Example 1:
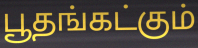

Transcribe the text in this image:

பூதங்கட்கும்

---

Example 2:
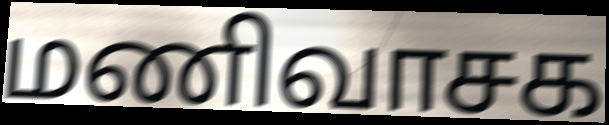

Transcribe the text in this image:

மணிவாசக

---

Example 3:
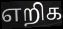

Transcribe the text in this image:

எறிக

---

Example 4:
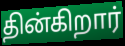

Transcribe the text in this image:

தின்கிறார்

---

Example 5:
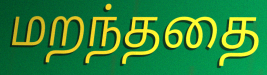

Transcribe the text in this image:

மறந்ததை